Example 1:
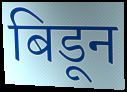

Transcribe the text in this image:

बिडून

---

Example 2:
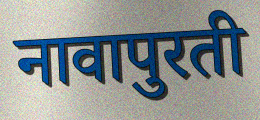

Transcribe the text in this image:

नावापुरती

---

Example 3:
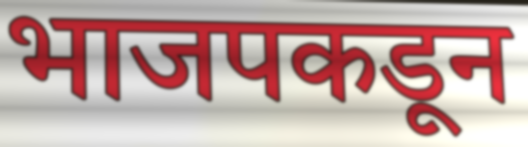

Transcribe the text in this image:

भाजपकडून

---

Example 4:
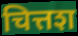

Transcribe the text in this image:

चित्तश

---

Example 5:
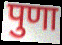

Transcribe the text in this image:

पुणा